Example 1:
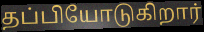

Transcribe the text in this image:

தப்பியோடுகிறார்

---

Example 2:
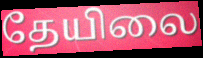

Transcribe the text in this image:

தேயிலை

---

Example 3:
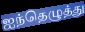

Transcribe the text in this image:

ஐந்தெழுத்து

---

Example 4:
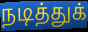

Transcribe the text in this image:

நடித்துக்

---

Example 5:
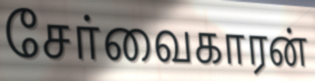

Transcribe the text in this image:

சேர்வைகாரன்